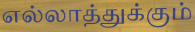
எல்லாத்துக்கும்